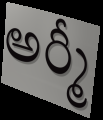
అర్మీ